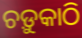
ଚଡ଼ୁକାଠି